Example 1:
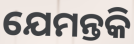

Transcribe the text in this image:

ଯେମନ୍ତକି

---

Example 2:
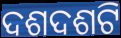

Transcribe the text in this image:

ଦଶଦଶଟି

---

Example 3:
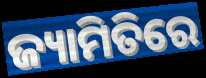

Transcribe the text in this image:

ଜ୍ୟାମିତିରେ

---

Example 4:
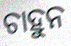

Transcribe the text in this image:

ଚାହୁନ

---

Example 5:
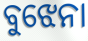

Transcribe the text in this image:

ବୁଝେନା